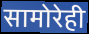
सामोरेही